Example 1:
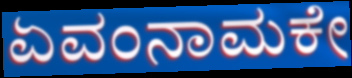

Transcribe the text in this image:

ಏವಂನಾಮಕೇ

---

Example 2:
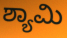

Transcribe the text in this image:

ಶ್ಯಾಮಿ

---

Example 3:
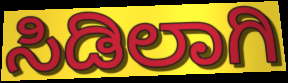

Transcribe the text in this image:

ಸಿಡಿಲಾಗಿ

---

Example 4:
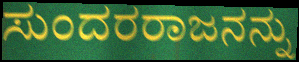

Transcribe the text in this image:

ಸುಂದರರಾಜನನ್ನು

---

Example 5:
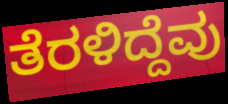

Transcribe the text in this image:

ತೆರಳಿದ್ದೆವು